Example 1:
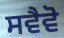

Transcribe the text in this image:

ਸਵੈਵੋ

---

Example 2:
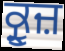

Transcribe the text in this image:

ਕ੍ਰੂਜ਼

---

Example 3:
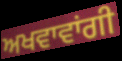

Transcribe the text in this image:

ਅਖਵਾਵਾਂਗੀ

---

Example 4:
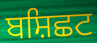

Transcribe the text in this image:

ਬਸ਼ਿਛਟ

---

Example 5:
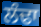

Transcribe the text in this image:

ਲੰਢਾ